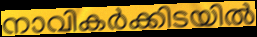
നാവികർക്കിടയിൽ